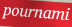
pournami